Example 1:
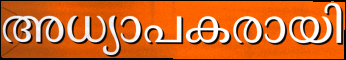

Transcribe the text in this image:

അധ്യാപകരായി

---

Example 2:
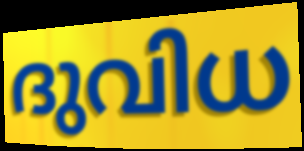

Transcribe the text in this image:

ദുവിധ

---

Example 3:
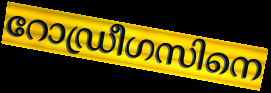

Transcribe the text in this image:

റോഡ്രീഗസിനെ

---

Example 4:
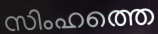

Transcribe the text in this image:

സിംഹത്തെ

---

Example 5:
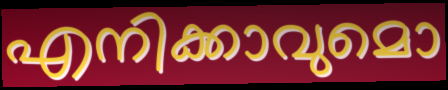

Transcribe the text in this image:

എനിക്കാവുമൊ